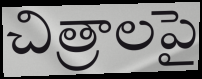
చిత్రాలపై